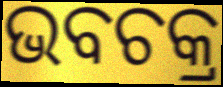
ଭବଚକ୍ର